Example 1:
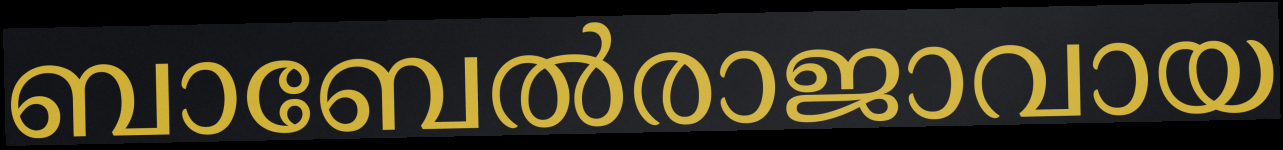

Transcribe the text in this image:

ബാബേൽരാജാവായ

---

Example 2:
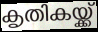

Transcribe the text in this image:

കൃതികയ്ക്ക്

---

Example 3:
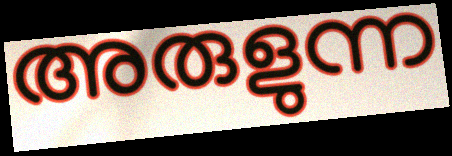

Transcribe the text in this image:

അരുളുന്ന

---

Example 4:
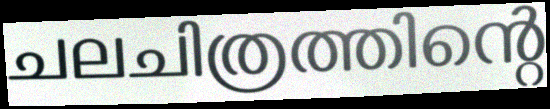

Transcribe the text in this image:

ചലചിത്രത്തിന്റെ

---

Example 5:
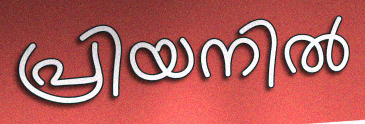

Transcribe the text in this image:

പ്രിയനിൽ